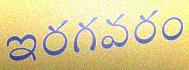
ఇరగవరం